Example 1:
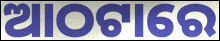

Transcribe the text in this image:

ଆଠଟାରେ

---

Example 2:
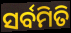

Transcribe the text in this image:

ସର୍ବମିତି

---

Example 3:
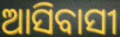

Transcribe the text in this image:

ଆସିବାସୀ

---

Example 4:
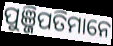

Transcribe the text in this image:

ପୁଞ୍ଜିପତିମାନେ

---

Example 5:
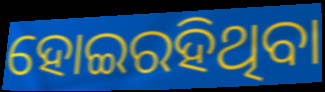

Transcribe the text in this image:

ହୋଇରହିଥିବା